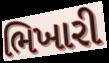
ભિખારી